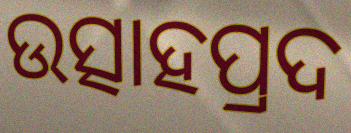
ଉତ୍ସାହପ୍ରଦ